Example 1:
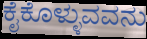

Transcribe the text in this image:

ಕೈಕೊಳ್ಳುವವನು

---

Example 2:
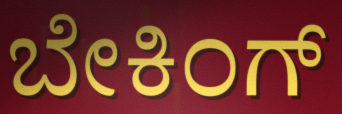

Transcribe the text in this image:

ಬೇಕಿಂಗ್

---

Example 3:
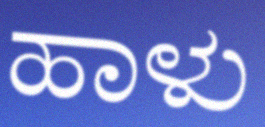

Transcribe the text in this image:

ಹಾಳು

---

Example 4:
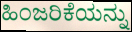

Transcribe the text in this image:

ಹಿಂಜರಿಕೆಯನ್ನು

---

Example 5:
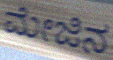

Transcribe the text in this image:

ಮೇಜಿನ